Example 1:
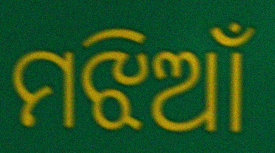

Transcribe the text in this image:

ମଝିଆଁ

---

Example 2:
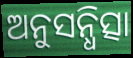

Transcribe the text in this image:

ଅନୁସନ୍ଧିତ୍ସା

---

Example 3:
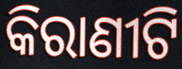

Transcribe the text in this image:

କିରାଣୀଟି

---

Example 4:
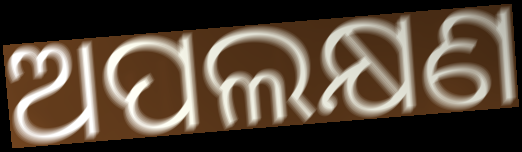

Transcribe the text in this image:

ଅପଲକ୍ଷଣ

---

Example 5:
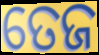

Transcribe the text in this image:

ତେଜ